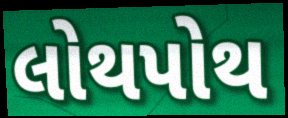
લોથપોથ